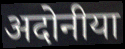
अदोनीया